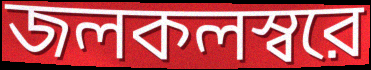
জলকলস্বরে